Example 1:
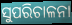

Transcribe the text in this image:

ସୁପରିଚାଳନା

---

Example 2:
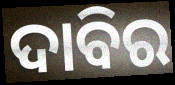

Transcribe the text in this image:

ଦାବିର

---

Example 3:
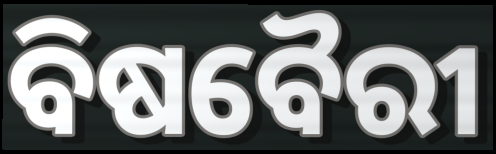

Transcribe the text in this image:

ବିଷବୈରୀ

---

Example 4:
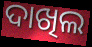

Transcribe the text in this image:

ଦାଖିଲ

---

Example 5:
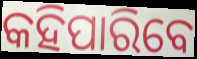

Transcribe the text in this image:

କହିପାରିବେ